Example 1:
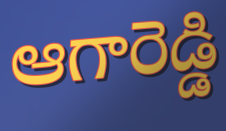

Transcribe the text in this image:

ఆగారెడ్డి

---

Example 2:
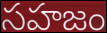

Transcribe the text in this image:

సహజం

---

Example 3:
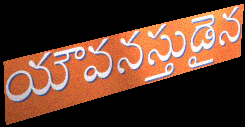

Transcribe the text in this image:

యౌవనస్తుడైన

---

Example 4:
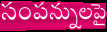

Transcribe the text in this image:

సంపన్నులపై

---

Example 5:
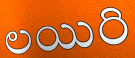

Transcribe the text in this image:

లయిరి